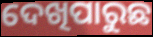
ଦେଖିପାରୁଛ